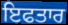
ਇਫਤਾਰ